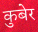
कुबेर